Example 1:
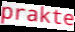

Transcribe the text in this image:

prakte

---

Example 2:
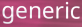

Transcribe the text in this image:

generic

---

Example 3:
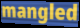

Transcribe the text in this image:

mangled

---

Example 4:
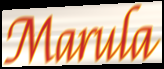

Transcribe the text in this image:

Marula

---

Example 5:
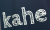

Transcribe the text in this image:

kahe